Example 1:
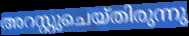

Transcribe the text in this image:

അറസ്റ്റുചെയ്തിരുന്നു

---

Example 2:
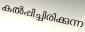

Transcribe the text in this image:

കൽപ്പിച്ചിരിക്കുന്ന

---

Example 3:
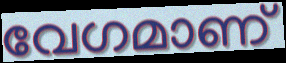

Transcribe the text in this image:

വേഗമാണ്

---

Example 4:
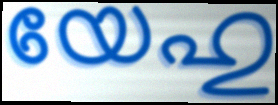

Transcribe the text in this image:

യേഹു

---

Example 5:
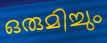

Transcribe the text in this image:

ഒരുമിച്ചും